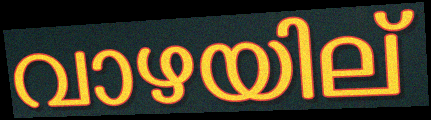
വാഴയില്